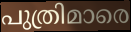
പുത്രിമാരെ